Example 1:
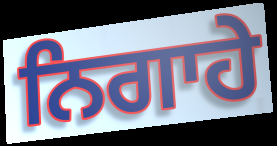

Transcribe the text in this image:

ਨਿਗਾਹੇ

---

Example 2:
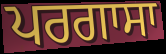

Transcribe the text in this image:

ਪਰਗਾਸਾ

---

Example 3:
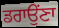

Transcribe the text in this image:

ਡਰਾਉਂਣਾ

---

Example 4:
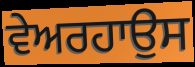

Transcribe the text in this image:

ਵੇਅਰਹਾਉਸ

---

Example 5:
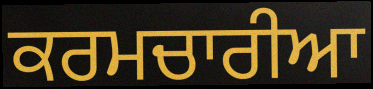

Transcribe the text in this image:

ਕਰਮਚਾਰੀਆ